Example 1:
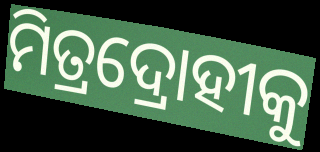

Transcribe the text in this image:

ମିତ୍ରଦ୍ରୋହୀକୁ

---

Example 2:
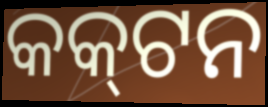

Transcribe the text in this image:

କକ୍‌ଟନ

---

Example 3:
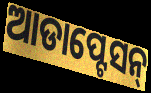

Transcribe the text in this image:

ଆଡାପ୍ଟେସନ୍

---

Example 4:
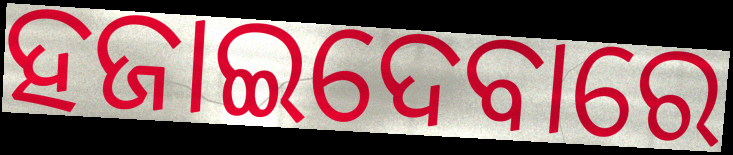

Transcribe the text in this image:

ହଜାଇଦେବାରେ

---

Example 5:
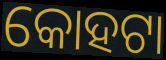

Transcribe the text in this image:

କୋହଟା